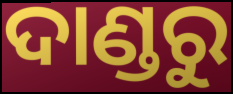
ଦାଣ୍ଡରୁ